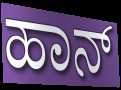
ಹಾನ್